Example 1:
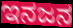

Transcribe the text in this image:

ಇನಜನ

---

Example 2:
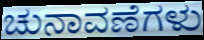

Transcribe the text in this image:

ಚುನಾವಣೆಗಳು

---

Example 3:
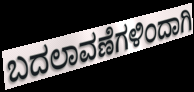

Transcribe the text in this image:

ಬದಲಾವಣೆಗಳಿಂದಾಗಿ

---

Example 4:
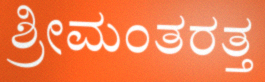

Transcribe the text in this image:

ಶ್ರೀಮಂತರತ್ತ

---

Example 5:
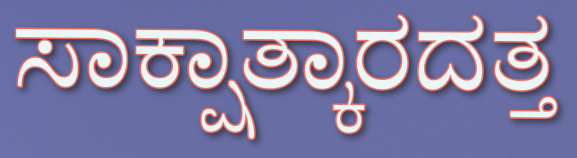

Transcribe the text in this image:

ಸಾಕ್ಷಾತ್ಕಾರದತ್ತ